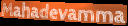
Mahadevamma